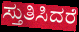
ಸ್ತುತಿಸಿದರೆ